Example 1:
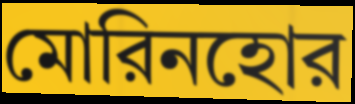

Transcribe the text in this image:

মোরিনহোর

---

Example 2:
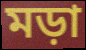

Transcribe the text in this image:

মড়া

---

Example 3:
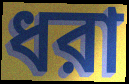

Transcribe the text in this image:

ধরা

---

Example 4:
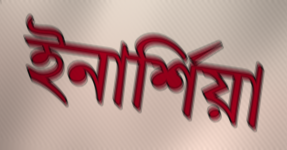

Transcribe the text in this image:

ইনার্শিয়া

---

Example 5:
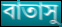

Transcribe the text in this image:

বাতাসু